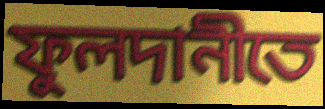
ফুলদানীতে